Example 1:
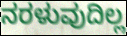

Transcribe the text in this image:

ನರಳುವುದಿಲ್ಲ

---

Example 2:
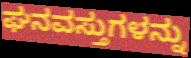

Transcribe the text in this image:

ಘನವಸ್ತುಗಳನ್ನು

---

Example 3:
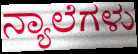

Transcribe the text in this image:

ನ್ಯಾಲೆಗಳು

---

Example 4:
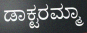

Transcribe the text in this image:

ಡಾಕ್ಟರಮ್ಮಾ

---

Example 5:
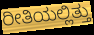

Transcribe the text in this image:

ರೀತಿಯಲ್ಲಿತ್ತು